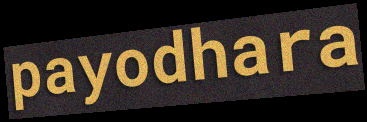
payodhara